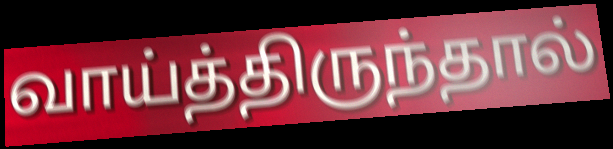
வாய்த்திருந்தால்